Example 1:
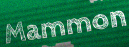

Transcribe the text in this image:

Mammon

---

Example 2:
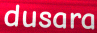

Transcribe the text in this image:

dusara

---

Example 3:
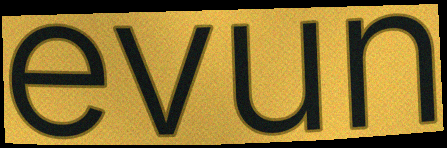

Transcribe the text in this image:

evun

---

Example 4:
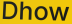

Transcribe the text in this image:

Dhow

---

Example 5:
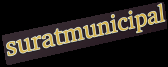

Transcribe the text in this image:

suratmunicipal